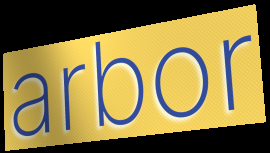
arbor